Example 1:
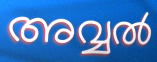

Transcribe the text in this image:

അവ്വൽ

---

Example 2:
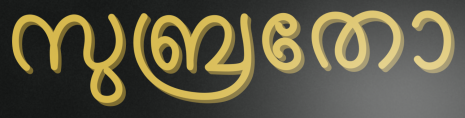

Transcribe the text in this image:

സുബ്രതോ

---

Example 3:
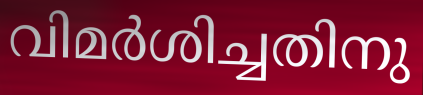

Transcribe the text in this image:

വിമർശിച്ചതിനു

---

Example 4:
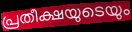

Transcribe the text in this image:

പ്രതീക്ഷയുടെയും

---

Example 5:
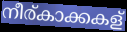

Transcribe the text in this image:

നീര്കാക്കകള്